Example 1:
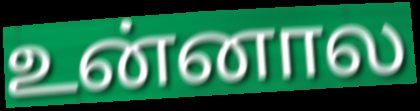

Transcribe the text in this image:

உன்னால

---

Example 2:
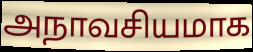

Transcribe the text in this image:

அநாவசியமாக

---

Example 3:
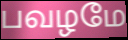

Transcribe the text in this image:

பவழமே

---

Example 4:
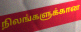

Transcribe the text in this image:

நிலங்களுக்கான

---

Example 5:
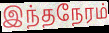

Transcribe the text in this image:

இந்தநேரம்